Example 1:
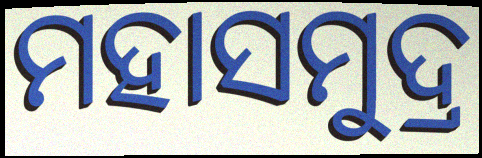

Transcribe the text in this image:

ମହାସମୁଦ୍ର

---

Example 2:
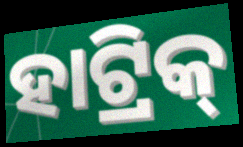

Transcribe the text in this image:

ହାଟ୍ରିକ୍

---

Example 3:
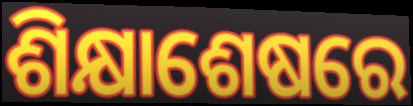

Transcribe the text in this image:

ଶିକ୍ଷାଶେଷରେ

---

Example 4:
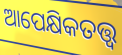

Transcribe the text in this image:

ଆପେକ୍ଷିକତତ୍ତ୍ୱ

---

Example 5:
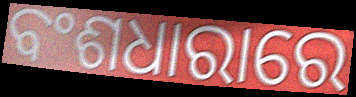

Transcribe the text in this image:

ବଂଶଧାରାରେ